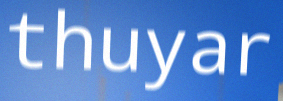
thuyar